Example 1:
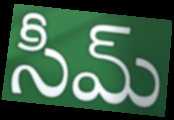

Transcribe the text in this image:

సీమ్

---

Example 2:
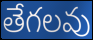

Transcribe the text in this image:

తేగలవు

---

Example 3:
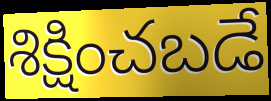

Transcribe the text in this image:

శిక్షించబడే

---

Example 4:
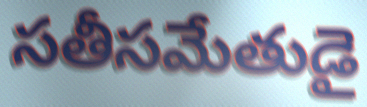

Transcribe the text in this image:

సతీసమేతుడై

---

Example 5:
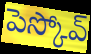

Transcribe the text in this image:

పెస్కోవ్